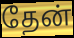
தேன்